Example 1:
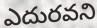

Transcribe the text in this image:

ఎదురవని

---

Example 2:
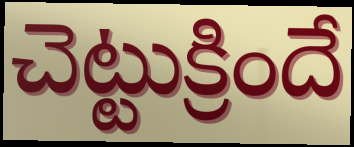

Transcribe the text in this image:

చెట్టుక్రిందే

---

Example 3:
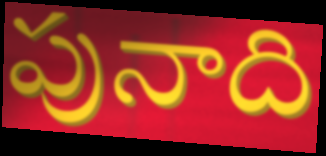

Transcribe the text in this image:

పునాది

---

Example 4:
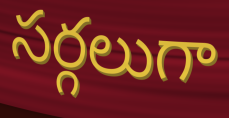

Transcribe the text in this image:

సర్గలుగా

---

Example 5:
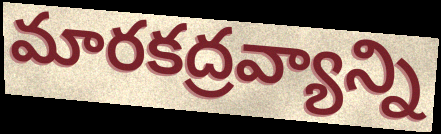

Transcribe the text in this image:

మారకద్రవ్యాన్ని